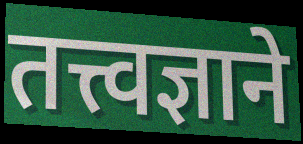
तत्त्वज्ञाने